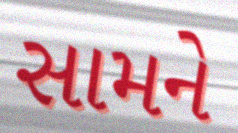
સામને